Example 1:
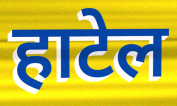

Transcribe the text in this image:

हाटेल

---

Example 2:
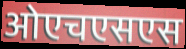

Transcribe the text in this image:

ओएचएसएस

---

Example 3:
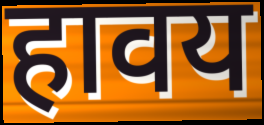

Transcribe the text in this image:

हावय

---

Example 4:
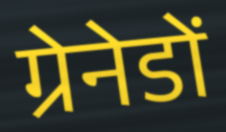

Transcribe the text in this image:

ग्रेनेडों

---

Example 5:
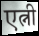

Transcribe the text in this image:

एत्नी